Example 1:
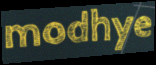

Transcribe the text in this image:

modhye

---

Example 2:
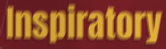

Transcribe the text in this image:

Inspiratory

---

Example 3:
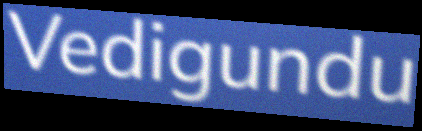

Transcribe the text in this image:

Vedigundu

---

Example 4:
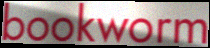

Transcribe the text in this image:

bookworm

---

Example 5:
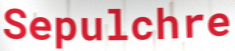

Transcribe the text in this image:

Sepulchre